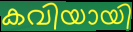
കവിയായി